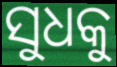
ସୁଧକୁ